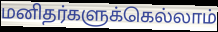
மனிதர்களுக்கெல்லாம்